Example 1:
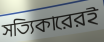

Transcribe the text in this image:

সত্যিকারেরই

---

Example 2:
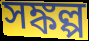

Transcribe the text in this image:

সঙ্কল্প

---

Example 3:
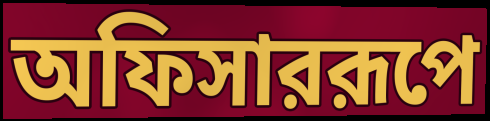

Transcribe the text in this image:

অফিসাররূপে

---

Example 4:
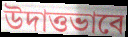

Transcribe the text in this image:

উদাত্তভাবে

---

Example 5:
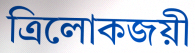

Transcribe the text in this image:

ত্রিলোকজয়ী